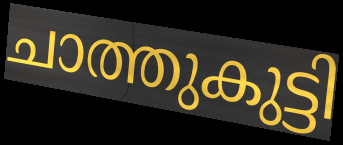
ചാത്തുകുട്ടി